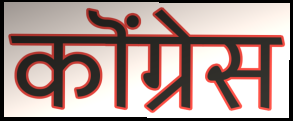
कॊंग्रेस